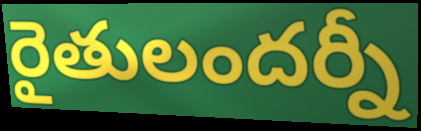
రైతులందర్నీ